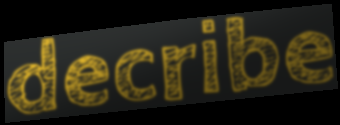
decribe